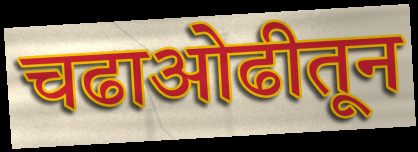
चढाओढीतून